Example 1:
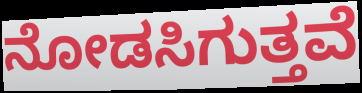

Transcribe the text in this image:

ನೋಡಸಿಗುತ್ತವೆ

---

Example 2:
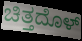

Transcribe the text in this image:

ಚಿತ್ತದೊಳ್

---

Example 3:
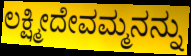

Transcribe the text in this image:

ಲಕ್ಷ್ಮೀದೇವಮ್ಮನನ್ನು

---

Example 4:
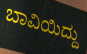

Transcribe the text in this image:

ಬಾವಿಯಿದ್ದು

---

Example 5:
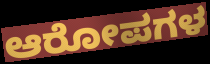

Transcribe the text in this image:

ಆರೋಪಗಳ